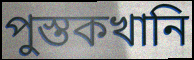
পুস্তকখানি